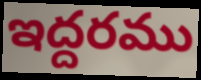
ఇద్దరము